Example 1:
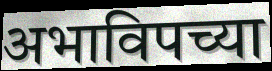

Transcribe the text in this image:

अभाविपच्या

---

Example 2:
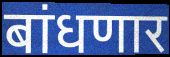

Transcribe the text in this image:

बांधणार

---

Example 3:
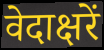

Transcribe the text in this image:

वेदाक्षरें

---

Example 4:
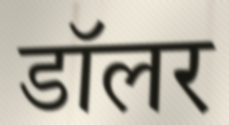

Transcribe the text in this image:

डॉलर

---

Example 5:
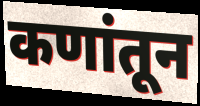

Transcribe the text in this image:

कणांतून